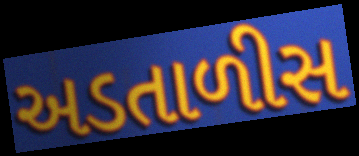
અડતાળીસ